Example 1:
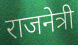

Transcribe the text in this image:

राजनेत्री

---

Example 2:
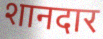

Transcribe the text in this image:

शानदार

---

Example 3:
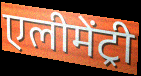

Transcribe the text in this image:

एलीमेंट्री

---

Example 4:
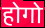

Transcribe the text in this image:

होगो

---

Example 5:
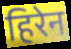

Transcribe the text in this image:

हिरेन